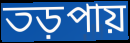
তড়পায়